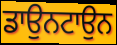
ਡਾਉਨਟਾਉਨ